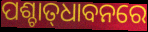
ପଶ୍ଚାତ୍‍ଧାବନରେ